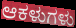
ಆಕಳುಗಳು